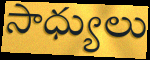
సాధ్యులు